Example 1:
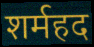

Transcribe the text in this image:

शर्महद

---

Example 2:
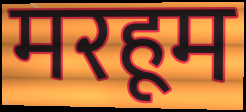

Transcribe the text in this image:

मरहूम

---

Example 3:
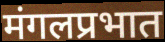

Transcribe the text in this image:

मंगलप्रभात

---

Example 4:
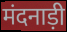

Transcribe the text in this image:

मंदनाड़ी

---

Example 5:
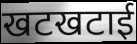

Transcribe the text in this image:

खटखटाई